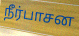
நீர்பாசன